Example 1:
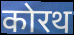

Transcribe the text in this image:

कोरथ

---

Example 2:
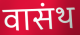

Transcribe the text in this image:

वासंथ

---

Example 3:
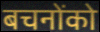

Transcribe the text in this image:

बचनोंको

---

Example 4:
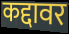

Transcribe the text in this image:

कद्दावर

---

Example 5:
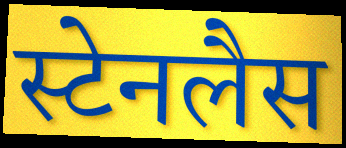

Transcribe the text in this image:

स्टेनलैस